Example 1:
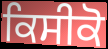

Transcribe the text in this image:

ਕਿਸੀਕੋ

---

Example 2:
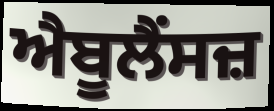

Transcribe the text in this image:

ਐਬੂਲੈਂਸਜ਼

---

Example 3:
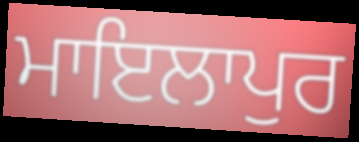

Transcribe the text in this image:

ਮਾਇਲਾਪੁਰ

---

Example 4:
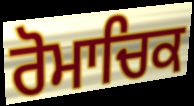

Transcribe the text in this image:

ਰੋਮਾਚਿਕ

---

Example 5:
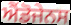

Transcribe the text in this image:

ਐਂਡੋਜੇਨਸ